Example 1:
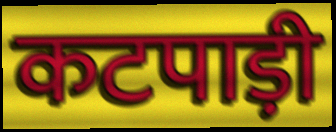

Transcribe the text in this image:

कटपाड़ी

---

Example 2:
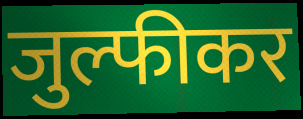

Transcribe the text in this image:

जुल्फीकर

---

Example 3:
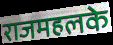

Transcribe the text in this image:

राजमहलके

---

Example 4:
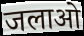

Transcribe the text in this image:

जलाओ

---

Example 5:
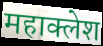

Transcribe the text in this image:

महाक्लेश